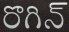
రొగిన్